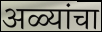
अळ्यांचा